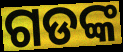
ଗଡଙ୍କ